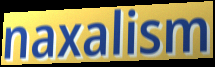
naxalism